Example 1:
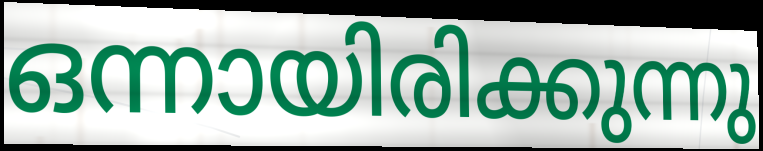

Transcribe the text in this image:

ഒന്നായിരിക്കുന്നു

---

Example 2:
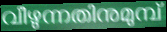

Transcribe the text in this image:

വീഴുന്നതിനുമുമ്പ്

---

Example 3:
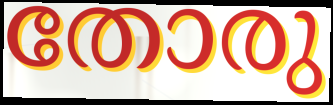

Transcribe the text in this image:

തോരു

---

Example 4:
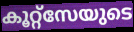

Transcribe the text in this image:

കൂറ്റ്സേയുടെ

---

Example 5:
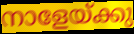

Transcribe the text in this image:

നാളേയ്ക്കു